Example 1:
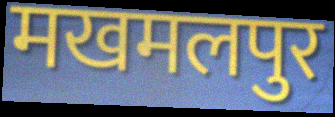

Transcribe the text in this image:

मखमलपुर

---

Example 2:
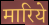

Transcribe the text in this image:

मारिये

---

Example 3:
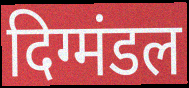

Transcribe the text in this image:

दिग्मंडल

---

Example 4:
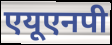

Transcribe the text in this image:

एयूएनपी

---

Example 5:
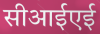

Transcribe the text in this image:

सीआईएई